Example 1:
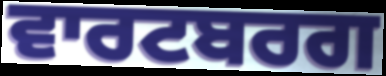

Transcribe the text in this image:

ਵਾਰਟਬਰਗ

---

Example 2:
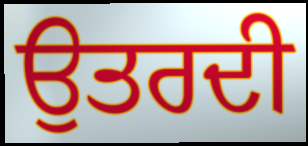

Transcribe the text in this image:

ਉਤਰਦੀ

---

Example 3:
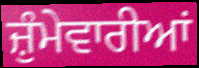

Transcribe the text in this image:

ਜ਼ੁੰਮੇਵਾਰੀਆਂ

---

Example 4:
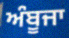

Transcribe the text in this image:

ਅੰਬੂਜਾ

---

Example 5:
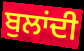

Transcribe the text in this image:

ਬੁਲਾਂਦੀ